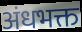
अंधभक्त